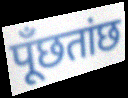
पूँछतांछ